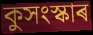
কুসংস্কাৰ